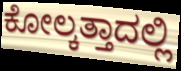
ಕೋಲ್ಕತ್ತಾದಲ್ಲಿ